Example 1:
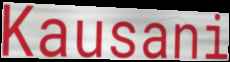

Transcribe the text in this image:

Kausani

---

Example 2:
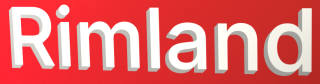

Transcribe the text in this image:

Rimland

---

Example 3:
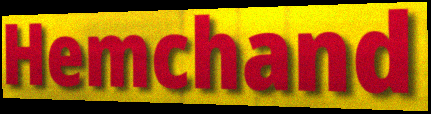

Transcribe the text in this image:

Hemchand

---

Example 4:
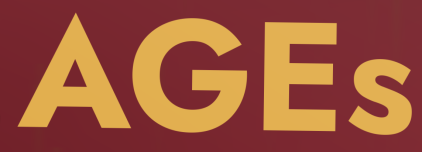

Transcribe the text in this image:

AGEs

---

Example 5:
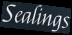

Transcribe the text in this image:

Sealings